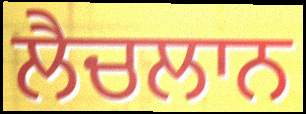
ਲੈਚਲਾਨ